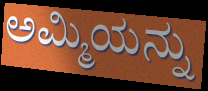
ಅಮ್ಮಿಯನ್ನು